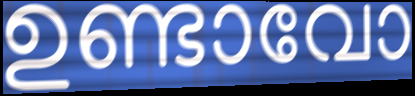
ഉണ്ടാവോ